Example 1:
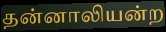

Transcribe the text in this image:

தன்னாலியன்ற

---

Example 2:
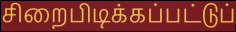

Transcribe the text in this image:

சிறைபிடிக்கப்பட்டுப்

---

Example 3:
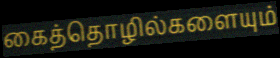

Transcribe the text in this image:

கைத்தொழில்களையும்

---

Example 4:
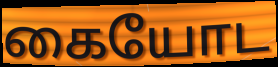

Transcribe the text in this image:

கையோட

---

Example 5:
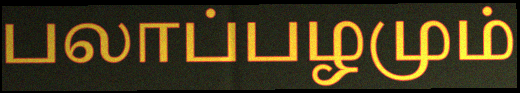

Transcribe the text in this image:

பலாப்பழமும்